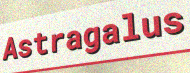
Astragalus